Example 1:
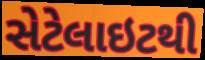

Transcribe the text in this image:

સેટેલાઇટથી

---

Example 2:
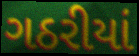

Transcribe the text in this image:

ગઠરીયાં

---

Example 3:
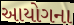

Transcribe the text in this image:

આયોગના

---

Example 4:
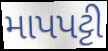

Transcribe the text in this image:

માપપટ્ટી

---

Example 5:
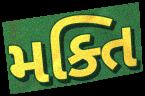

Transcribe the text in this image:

મક્તિ